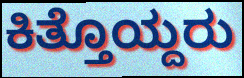
ಕಿತ್ತೊಯ್ದರು